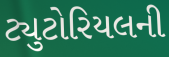
ટ્યુટોરિયલની